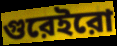
গুরেইরো